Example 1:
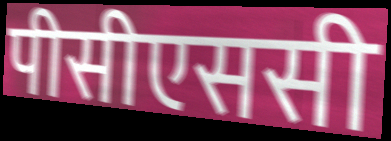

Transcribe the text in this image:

पीसीएससी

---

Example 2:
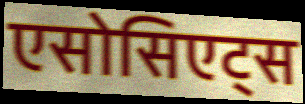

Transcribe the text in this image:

एसोसिएट्स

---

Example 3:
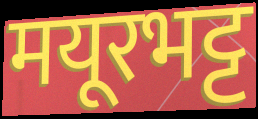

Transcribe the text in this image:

मयूरभट्ट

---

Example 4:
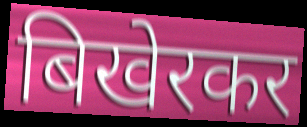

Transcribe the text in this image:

बिखेरकर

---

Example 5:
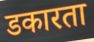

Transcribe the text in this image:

डकारता